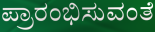
ಪ್ರಾರಂಭಿಸುವಂತೆ